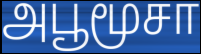
அபூமூசா